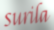
surila